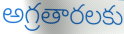
అగ్రతారలకు